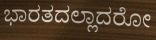
ಭಾರತದಲ್ಲಾದರೋ